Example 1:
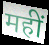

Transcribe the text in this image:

महीं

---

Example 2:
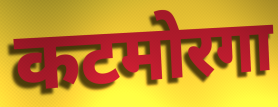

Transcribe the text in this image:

कटमोरगा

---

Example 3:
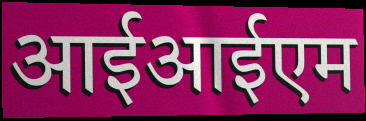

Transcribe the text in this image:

आईआईएम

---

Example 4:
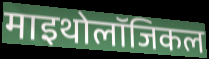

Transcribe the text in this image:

माइथोलॉजिकल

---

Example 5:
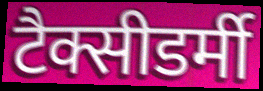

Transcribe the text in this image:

टैक्सीडर्मी